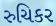
રુચિકર